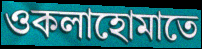
ওকলাহোমাতে